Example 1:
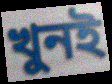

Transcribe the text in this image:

খুনই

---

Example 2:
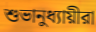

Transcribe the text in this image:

শুভানুধ্যায়ীরা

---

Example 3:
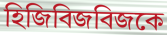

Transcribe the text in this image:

হিজিবিজবিজকে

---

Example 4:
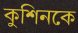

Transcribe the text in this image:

কুশিনকে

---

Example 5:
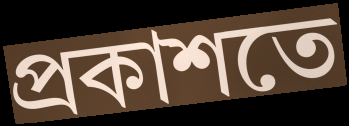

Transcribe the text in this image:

প্রকাশতে